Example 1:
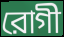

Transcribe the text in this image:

রোগী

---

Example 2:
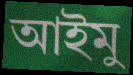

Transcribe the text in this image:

আইমু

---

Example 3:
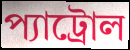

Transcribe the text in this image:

প্যাট্রোল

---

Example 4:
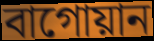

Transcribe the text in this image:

বাগোয়ান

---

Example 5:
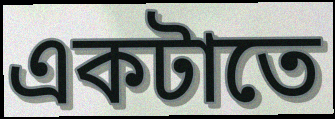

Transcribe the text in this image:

একটাতে